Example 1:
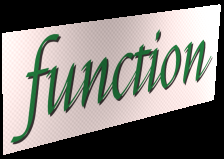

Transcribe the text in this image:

function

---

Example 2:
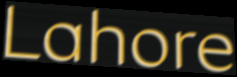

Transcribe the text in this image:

Lahore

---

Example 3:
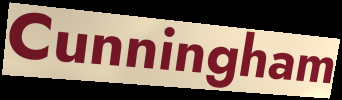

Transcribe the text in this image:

Cunningham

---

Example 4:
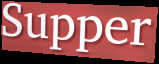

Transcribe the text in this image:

Supper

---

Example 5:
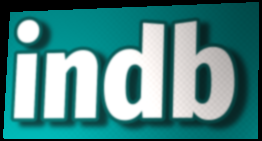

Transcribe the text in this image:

indb